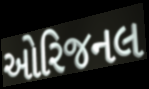
ઓરિજનલ